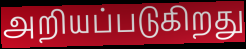
அறியப்படுகிறது